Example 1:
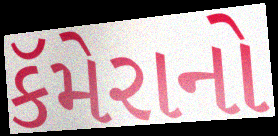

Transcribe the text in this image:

કૅમેરાનો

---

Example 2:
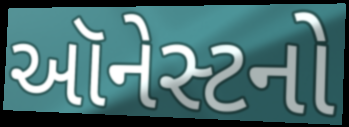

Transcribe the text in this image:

ઑનેસ્ટનો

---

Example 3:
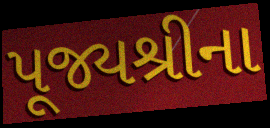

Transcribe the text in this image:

પૂજ્યશ્રીના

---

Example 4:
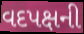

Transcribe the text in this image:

વદપક્ષની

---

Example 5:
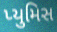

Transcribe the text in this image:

પ્યુમિસ